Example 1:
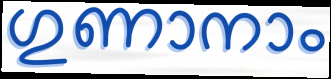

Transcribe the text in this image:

ഗുണാനാം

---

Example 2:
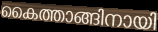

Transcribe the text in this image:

കൈത്താങ്ങിനായി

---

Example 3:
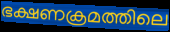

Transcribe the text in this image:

ഭക്ഷണക്രമത്തിലെ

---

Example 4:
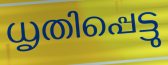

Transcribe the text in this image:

ധൃതിപ്പെട്ടു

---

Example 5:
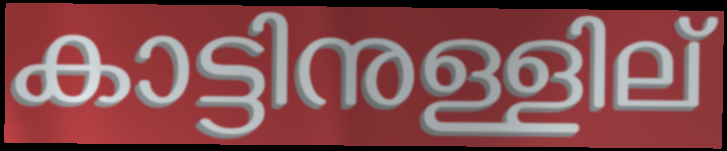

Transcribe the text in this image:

കാട്ടിനുള്ളില്